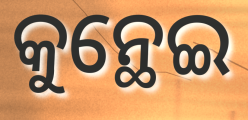
କୁନ୍ଥେଇ